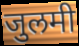
जुलमी